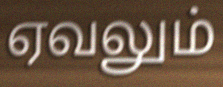
ஏவலும்